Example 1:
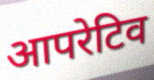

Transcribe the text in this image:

आपरेटिव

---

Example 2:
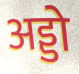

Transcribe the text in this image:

अड्डो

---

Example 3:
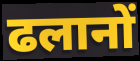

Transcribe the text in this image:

ढलानों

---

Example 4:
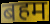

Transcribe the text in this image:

बहम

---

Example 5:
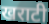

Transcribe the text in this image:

खराटी